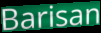
Barisan